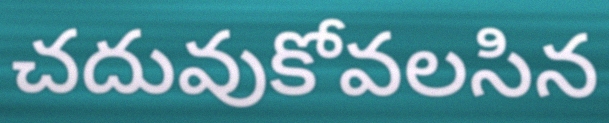
చదువుకోవలసిన